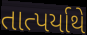
તાત્પર્યાથે